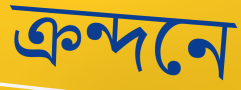
ক্রন্দনে